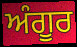
ਅੰਗੂਰ